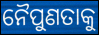
ନୈପୁଣତାକୁ